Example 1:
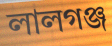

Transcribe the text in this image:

লালগঞ্জ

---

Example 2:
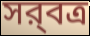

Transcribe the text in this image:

সর্‍বত্র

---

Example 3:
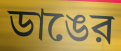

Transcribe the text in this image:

ডাঙের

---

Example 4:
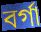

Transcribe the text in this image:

বর্গা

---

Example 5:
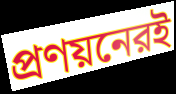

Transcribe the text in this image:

প্রণয়নেরই